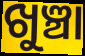
ଖୁଞ୍ଚା